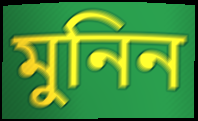
মুনিন